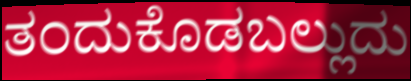
ತಂದುಕೊಡಬಲ್ಲುದು